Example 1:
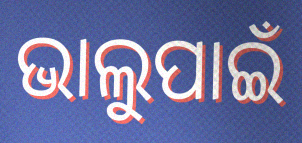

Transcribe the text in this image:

ଭାଲୁପାଇଁ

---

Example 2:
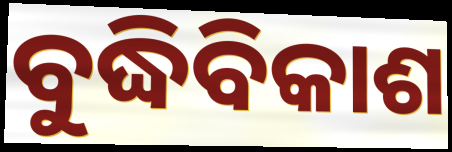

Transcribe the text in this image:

ବୁଦ୍ଧିବିକାଶ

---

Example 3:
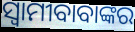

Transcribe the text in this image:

ସ୍ଵାମୀବାବାଙ୍କର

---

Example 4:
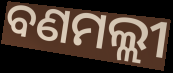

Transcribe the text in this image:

ବଣମଲ୍ଲୀ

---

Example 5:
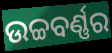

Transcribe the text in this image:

ଉଚ୍ଚବର୍ଣ୍ଣର